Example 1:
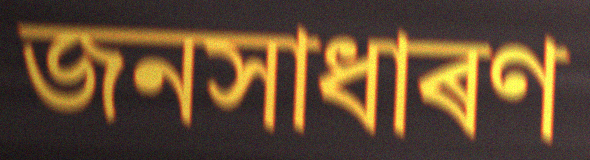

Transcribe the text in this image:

জনসাধাৰণ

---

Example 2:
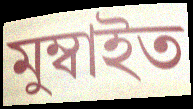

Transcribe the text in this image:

মুম্বাইত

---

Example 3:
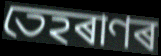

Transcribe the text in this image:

তেহৰাণৰ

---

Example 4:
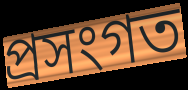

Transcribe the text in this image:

প্ৰসংগত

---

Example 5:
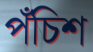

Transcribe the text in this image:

পঁচিশ